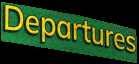
Departures